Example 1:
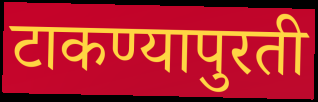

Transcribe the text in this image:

टाकण्यापुरती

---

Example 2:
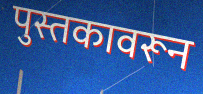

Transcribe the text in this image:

पुस्तकावरून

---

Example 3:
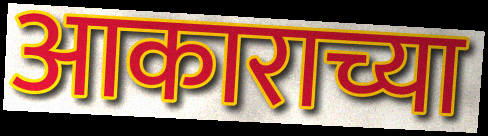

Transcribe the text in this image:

आकाराच्या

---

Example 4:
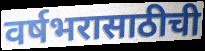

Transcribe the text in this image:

वर्षभरासाठीची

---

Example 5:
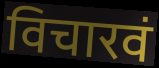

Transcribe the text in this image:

विचारवं